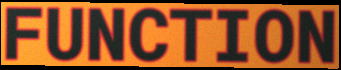
FUNCTION